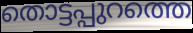
തൊട്ടപ്പുറത്തെ